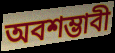
অবশম্ভাবী